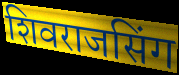
शिवराजसिंग